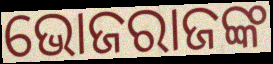
ଭୋଜରାଜଙ୍କ